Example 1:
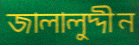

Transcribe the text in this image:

জালালুদ্দীন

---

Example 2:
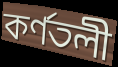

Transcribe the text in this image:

কর্ণতলী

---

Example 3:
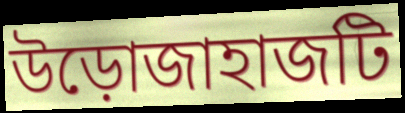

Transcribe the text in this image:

উড়োজাহাজটি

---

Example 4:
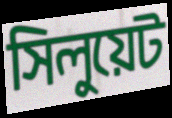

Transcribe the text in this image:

সিলুয়েট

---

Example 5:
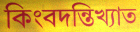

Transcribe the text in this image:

কিংবদন্তিখ্যাত